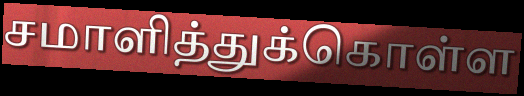
சமாளித்துக்கொள்ள